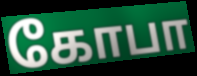
கோபா